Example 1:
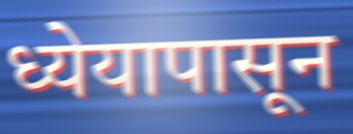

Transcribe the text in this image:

ध्येयापासून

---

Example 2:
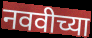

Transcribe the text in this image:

नववीच्या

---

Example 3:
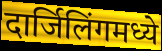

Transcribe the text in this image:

दार्जिलिंगमध्ये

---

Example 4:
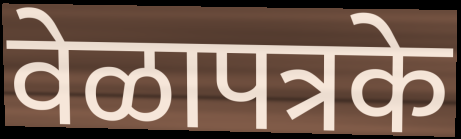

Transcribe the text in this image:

वेळापत्रके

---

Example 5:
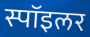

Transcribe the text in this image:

स्पॉइलर